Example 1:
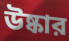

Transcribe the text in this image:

উষ্কার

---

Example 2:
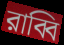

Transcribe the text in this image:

রাব্বি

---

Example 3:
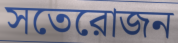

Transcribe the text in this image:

সতেরোজন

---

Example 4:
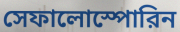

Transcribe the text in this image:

সেফালোস্পোরিন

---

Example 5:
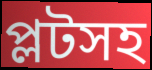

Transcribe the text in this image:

প্লটসহ